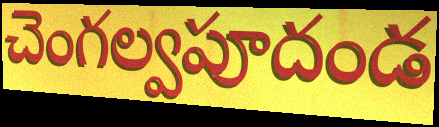
చెంగల్వపూదండ